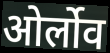
ओर्लोव